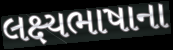
લક્ષ્યભાષાના